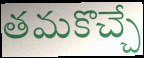
తమకొచ్చే